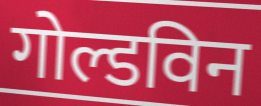
गोल्डविन